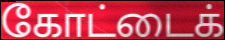
கோட்டைக்